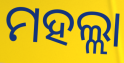
ମହଲ୍ଲା